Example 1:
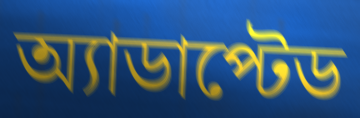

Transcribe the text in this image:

অ্যাডাপ্টেড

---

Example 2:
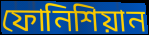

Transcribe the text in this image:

ফোনিশিয়ান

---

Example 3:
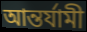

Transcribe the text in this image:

আন্তর্যামী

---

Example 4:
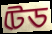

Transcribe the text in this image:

টেড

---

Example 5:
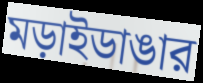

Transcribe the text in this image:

মড়াইডাঙার